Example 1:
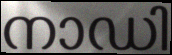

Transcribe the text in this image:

നാഡി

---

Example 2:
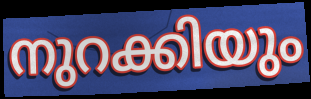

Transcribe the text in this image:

നുറക്കിയും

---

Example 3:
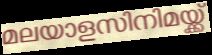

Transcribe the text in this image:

മലയാളസിനിമയ്ക്ക്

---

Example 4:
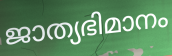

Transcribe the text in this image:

ജാത്യഭിമാനം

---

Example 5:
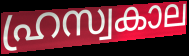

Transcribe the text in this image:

ഹ്രസ്വകാല